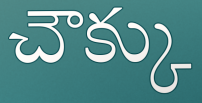
చౌక్కు